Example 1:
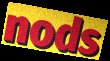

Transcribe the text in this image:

nods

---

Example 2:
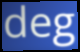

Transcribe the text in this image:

deg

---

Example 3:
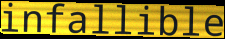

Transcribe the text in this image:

infallible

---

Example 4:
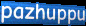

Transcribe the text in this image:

pazhuppu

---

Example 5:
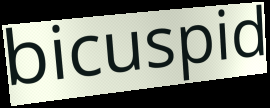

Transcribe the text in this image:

bicuspid